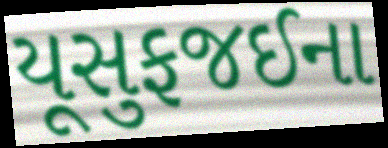
યૂસુફજઈના